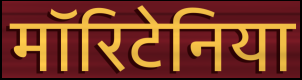
मॉरिटेनिया